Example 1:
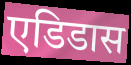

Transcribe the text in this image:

एडिडास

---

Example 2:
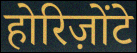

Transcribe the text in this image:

होरिज़ोंटे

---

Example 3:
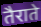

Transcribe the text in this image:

तैराते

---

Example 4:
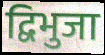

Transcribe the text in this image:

द्विभुजा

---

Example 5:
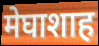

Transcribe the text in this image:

मेघाशाह